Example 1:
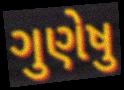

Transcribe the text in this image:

ગુણેષુ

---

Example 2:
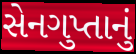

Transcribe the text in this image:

સેનગુપ્‍તાનું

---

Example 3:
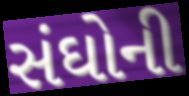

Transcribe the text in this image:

સંઘોની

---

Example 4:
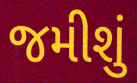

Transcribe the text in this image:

જમીશું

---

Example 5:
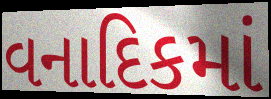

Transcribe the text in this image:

વનાદિકમાં